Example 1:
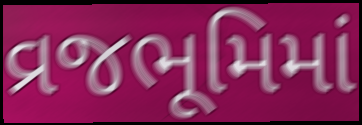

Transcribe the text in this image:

વ્રજભૂમિમાં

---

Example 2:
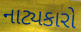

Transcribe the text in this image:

નાટ્યકારો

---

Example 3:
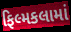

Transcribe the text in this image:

ફિલ્મકલામાં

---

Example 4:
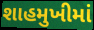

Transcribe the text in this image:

શાહમુખીમાં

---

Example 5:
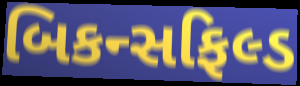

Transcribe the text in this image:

બિકન્સફિલ્ડ